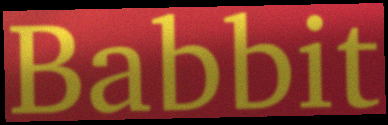
Babbit